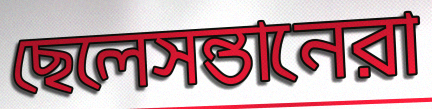
ছেলেসন্তানেরা